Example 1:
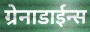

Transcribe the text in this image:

ग्रेनाडाईन्स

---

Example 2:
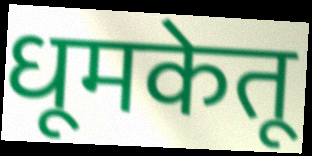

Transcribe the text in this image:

धूमकेतू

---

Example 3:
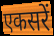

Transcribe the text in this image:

एकसरें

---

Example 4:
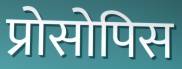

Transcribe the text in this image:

प्रोसोपिस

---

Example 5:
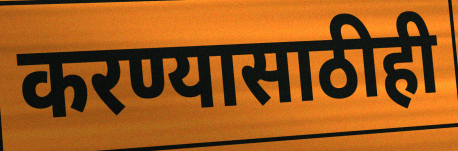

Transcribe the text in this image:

करण्यासाठीही